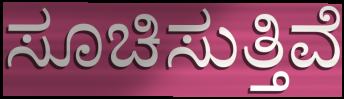
ಸೂಚಿಸುತ್ತಿವೆ